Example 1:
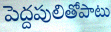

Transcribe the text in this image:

పెద్దపులితోపాటు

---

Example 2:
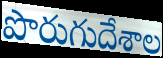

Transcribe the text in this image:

పొరుగుదేశాల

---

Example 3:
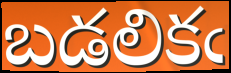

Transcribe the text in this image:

బడలికఁ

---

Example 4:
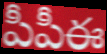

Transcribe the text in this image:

పీపీఈ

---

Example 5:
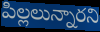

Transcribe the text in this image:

పిల్లలున్నారని